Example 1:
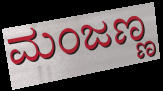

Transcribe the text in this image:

ಮಂಜಣ್ಣ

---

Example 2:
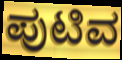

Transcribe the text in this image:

ಪುಟಿವ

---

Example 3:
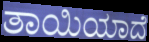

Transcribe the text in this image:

ತಾಯಿಯಾದೆ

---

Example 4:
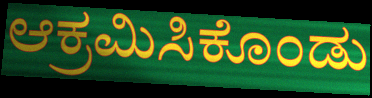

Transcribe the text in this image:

ಆಕ್ರಮಿಸಿಕೊಂಡು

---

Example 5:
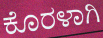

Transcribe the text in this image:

ಕೊರಳಾಗಿ